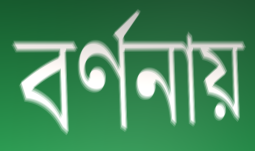
বর্ণনায়